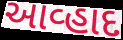
આવ્હાદ